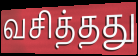
வசித்தது